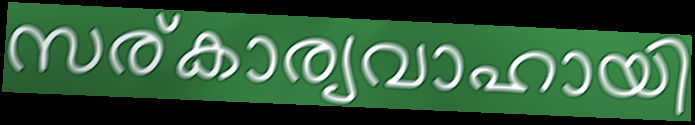
സര്കാര്യവാഹായി